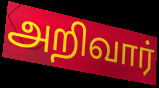
அறிவார்